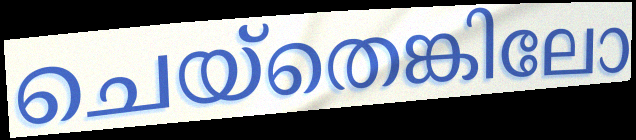
ചെയ്തെങ്കിലോ